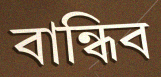
বান্ধিব